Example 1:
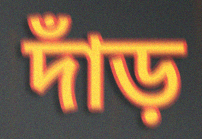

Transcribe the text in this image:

দাঁড়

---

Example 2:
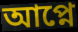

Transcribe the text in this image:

আপ্নে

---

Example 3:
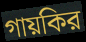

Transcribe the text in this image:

গায়কির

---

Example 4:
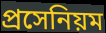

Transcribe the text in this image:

প্রসেনিয়ম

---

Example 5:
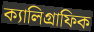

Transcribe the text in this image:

ক্যালিগ্রাফিক